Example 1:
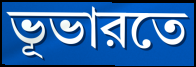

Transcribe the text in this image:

ভূভারতে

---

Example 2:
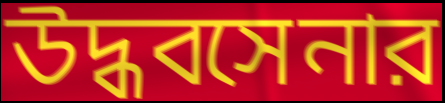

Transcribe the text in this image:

উদ্ধবসেনার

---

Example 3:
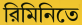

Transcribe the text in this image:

রিমিনিতে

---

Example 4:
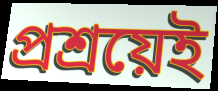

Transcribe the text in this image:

প্রশ্রয়েই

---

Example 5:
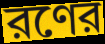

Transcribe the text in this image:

রণের